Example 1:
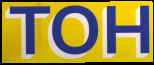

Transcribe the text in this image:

TOH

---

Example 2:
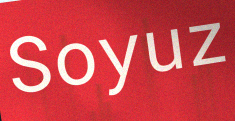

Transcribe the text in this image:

Soyuz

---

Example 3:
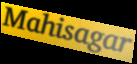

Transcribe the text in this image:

Mahisagar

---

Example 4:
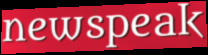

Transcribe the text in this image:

newspeak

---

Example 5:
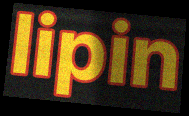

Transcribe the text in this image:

lipin